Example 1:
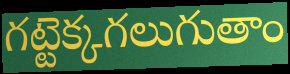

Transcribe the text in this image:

గట్టెక్కగలుగుతాం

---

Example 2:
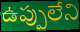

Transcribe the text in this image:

ఉప్పులేని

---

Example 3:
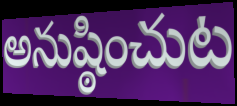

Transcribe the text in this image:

అనుష్ఠించుట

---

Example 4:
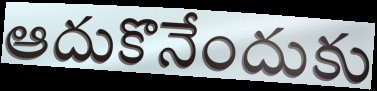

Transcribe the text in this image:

ఆదుకొనేందుకు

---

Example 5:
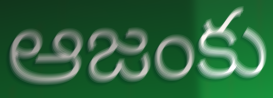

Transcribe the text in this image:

ఆజంకు